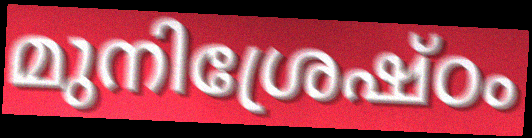
മുനിശ്രേഷ്ഠം